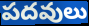
పదవులు